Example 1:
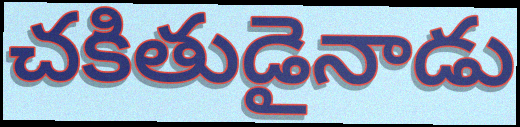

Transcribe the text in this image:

చకితుడైనాడు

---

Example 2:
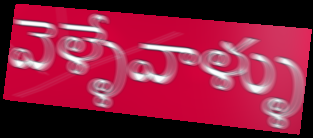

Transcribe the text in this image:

వెళ్ళేవాళ్ళు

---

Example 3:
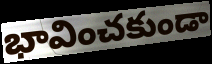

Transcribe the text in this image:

భావించకుండా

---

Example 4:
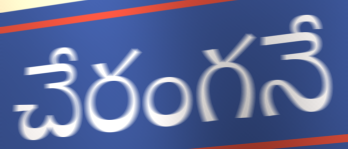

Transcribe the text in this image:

చేరంగనే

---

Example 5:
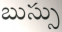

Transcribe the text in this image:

బుస్సు